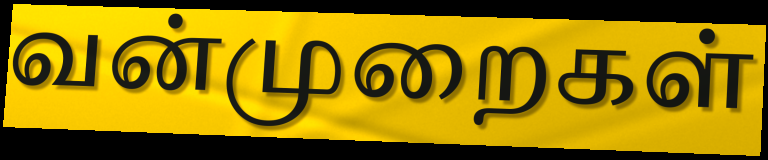
வன்முறைகள்